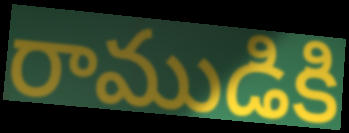
రాముడికి